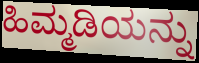
ಹಿಮ್ಮಡಿಯನ್ನು